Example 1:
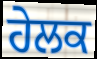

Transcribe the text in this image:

ਹੇਲਕ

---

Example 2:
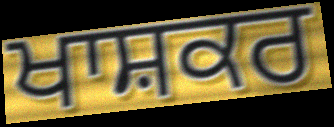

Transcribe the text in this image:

ਖਾਸ਼ਕਰ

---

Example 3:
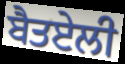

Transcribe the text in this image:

ਬੈਤਏਲੀ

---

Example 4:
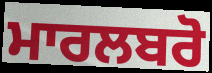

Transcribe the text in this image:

ਮਾਰਲਬਰੋ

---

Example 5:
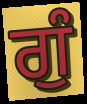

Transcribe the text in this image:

ਗੁੰ